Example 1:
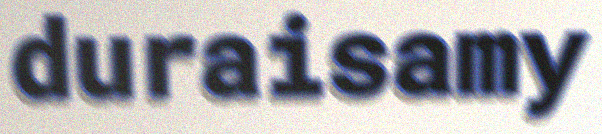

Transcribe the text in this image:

duraisamy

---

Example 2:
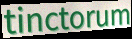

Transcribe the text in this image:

tinctorum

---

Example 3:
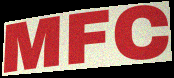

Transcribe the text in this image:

MFC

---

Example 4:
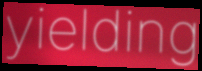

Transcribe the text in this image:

yielding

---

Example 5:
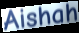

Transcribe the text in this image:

Aishah